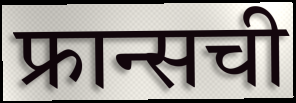
फ्रान्सची